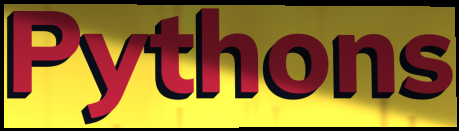
Pythons